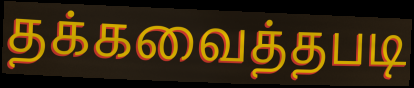
தக்கவைத்தபடி